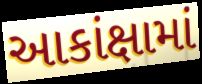
આકાંક્ષામાં